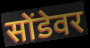
सोंडेवर